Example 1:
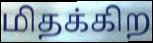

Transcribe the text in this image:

மிதக்கிற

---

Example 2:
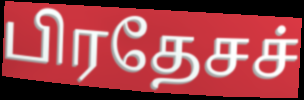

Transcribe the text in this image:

பிரதேசச்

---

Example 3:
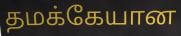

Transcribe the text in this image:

தமக்கேயான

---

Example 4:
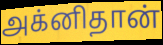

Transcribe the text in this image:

அக்னிதான்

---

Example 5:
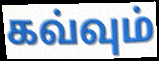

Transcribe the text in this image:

கவ்வும்